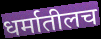
धर्मातीलच